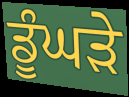
ਡੂੰਘੜੇ